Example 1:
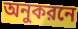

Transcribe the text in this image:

অনুকরনে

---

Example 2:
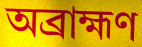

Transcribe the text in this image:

অব্রাহ্মণ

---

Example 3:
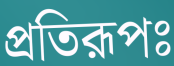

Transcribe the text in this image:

প্রতিরূপঃ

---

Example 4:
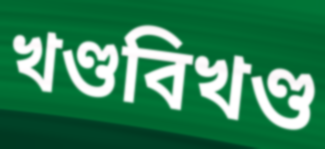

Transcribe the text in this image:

খণ্ডবিখণ্ড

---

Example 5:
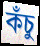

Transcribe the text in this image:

কঁচু